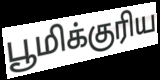
பூமிக்குரிய